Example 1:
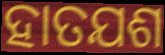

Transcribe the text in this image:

ହାତଯଶ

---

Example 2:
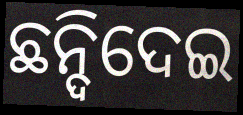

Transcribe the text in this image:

ଛନ୍ଦିଦେଇ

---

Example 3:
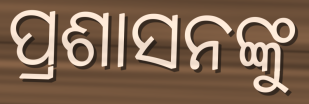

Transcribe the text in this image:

ପ୍ରଶାସନଙ୍କୁ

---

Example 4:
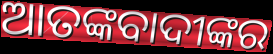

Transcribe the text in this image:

ଆତଙ୍କବାଦୀଙ୍କର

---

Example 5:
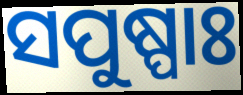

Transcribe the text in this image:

ସପୁଷ୍ପାଃ